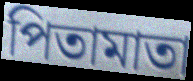
পিতামাতা